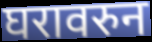
घरावरुन